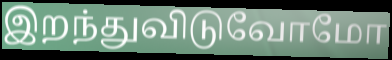
இறந்துவிடுவோமோ